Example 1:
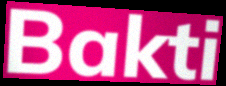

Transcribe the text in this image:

Bakti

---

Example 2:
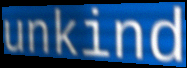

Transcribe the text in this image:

unkind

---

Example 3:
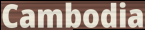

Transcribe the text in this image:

Cambodia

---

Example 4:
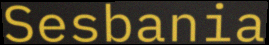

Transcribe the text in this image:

Sesbania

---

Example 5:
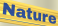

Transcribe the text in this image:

Nature